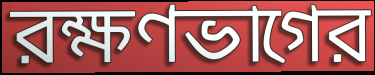
রক্ষণভাগের